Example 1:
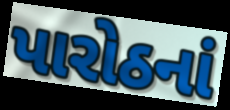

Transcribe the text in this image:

પારોઠનાં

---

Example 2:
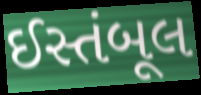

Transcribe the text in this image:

ઈસ્તંબૂલ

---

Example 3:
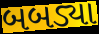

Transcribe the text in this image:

બબડ્યા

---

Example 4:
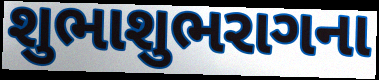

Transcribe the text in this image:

શુભાશુભરાગના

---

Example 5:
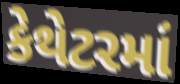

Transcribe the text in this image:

કેથેટરમાં